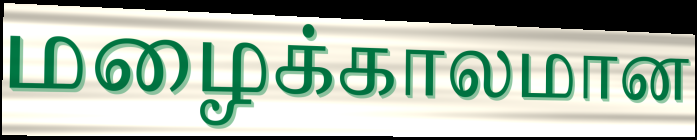
மழைக்காலமான